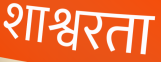
शाश्वरता